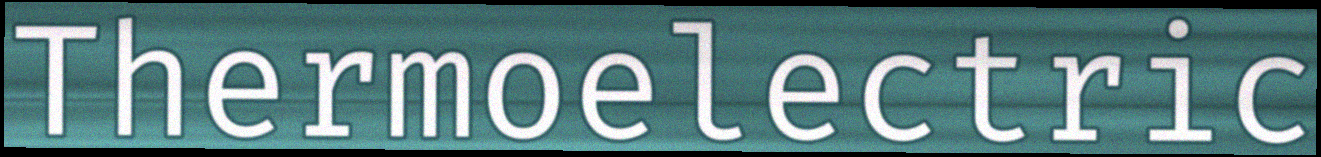
Thermoelectric